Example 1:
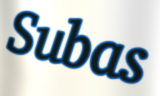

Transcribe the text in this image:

Subas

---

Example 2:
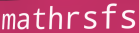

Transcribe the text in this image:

mathrsfs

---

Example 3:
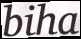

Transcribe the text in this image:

biha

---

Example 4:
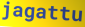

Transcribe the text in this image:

jagattu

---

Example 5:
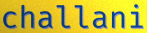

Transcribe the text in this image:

challani